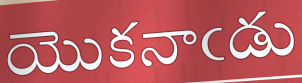
యొకనాఁడు